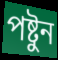
পষ্টুন